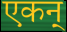
एकन्